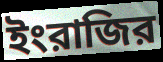
ইংরাজির